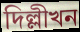
দিল্লীখন